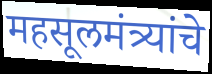
महसूलमंत्र्यांचे